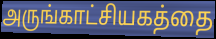
அருங்காட்சியகத்தை